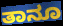
ತಾನೂ